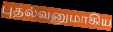
புதல்வனுமாகிய